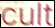
cult